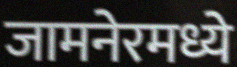
जामनेरमध्ये